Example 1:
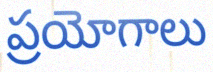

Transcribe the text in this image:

ప్రయోగాలు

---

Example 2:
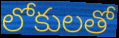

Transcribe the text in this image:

లోకులతో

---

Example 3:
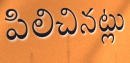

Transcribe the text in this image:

పిలిచినట్లు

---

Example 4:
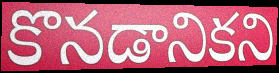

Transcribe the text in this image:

కొనడానికని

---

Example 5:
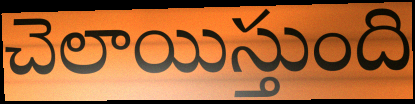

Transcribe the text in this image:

చెలాయిస్తుంది